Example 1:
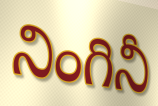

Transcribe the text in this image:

నింగినీ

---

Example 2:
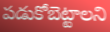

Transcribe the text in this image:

పడుకోబెట్టాలని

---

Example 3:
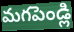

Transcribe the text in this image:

మగపెండ్లి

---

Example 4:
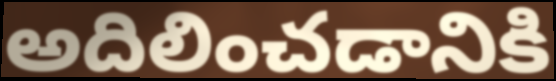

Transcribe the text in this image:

అదిలించడానికి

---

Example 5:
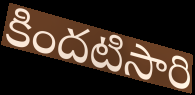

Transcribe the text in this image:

కిందటిసారి